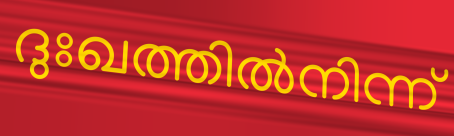
ദുഃഖത്തിൽനിന്ന്